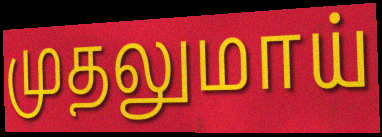
முதலுமாய்